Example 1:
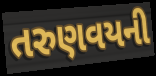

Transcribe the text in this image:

તરુણવયની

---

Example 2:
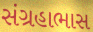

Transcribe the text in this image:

સંગ્રહાભાસ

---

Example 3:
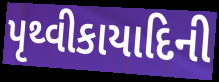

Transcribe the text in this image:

પૃથ્વીકાયાદિની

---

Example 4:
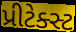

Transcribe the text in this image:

પ્રીટેક્સ્ટ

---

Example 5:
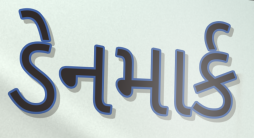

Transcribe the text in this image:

ડેનમાર્ક